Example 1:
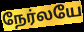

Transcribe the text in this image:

நேர்லயே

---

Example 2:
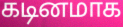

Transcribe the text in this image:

கடினமாக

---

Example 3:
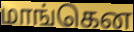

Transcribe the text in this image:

மாங்கென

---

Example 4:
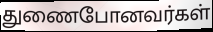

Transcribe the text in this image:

துணைபோனவர்கள்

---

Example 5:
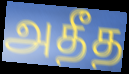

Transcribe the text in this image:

அதீத